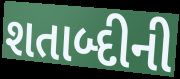
શતાબ્દીની